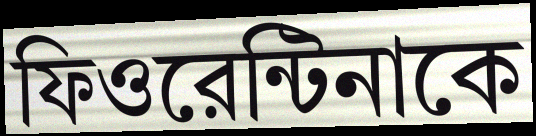
ফিওরেন্টিনাকে